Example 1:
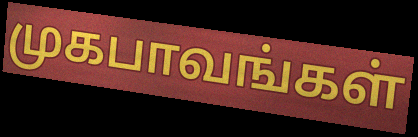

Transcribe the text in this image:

முகபாவங்கள்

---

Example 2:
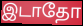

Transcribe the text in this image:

இடாதோ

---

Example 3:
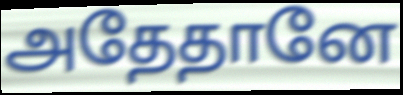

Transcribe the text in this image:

அதேதானே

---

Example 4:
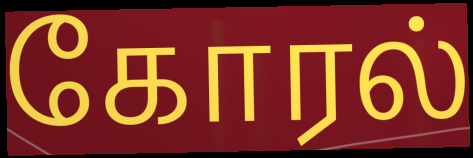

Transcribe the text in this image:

கோரல்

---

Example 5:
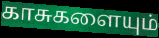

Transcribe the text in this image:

காசுகளையும்